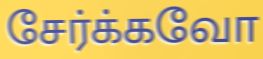
சேர்க்கவோ